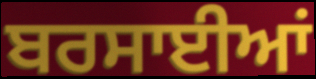
ਬਰਸਾਈਆਂ